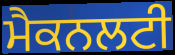
ਮੈਕਨਲਟੀ